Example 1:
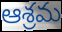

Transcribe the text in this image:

ఆశ్రమ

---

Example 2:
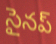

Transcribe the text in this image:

సైనప్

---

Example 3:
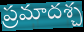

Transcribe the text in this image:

ప్రమాదశ్చ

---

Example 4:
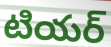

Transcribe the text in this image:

టియర్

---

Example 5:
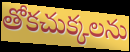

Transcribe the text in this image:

తోకచుక్కలను